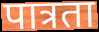
पात्रता